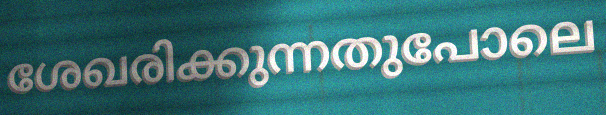
ശേഖരിക്കുന്നതുപോലെ